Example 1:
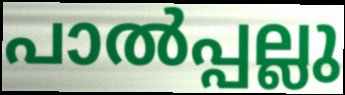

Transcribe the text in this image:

പാൽപ്പല്ലു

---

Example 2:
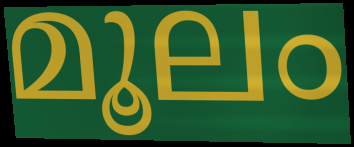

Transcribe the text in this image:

മൂലം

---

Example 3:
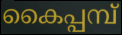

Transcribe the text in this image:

കൈപ്പമ്പ്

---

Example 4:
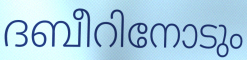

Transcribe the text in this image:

ദബീറിനോടും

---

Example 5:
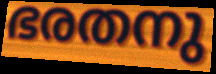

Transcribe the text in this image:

ഭരതനു